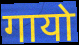
गायो